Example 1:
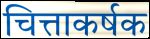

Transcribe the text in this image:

चित्ताकर्षक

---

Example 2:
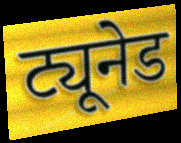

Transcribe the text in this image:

ट्यूनेड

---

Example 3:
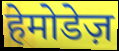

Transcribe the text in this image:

हेमोडेज़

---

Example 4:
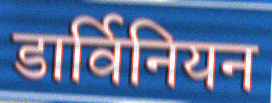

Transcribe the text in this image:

डार्विनियन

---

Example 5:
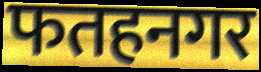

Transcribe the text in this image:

फतहनगर